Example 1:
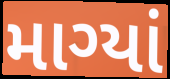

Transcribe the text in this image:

માગ્યાં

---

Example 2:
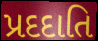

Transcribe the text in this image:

પ્રદદાતિ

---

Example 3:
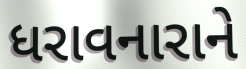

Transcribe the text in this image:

ધરાવનારાને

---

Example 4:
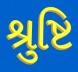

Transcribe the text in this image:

શ્રુષ્ટિ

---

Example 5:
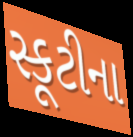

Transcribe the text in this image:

સ્કૂટીના